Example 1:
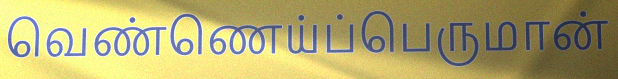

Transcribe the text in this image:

வெண்ணெய்ப்பெருமான்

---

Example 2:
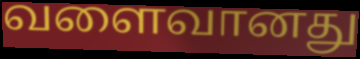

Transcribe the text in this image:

வளைவானது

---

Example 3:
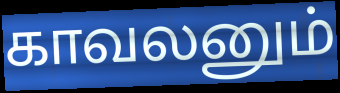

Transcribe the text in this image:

காவலனும்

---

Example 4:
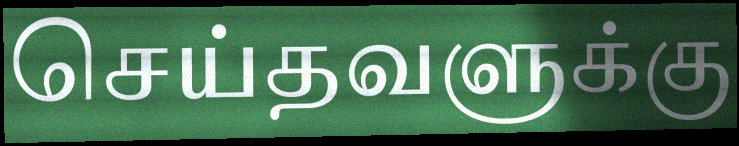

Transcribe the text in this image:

செய்தவளுக்கு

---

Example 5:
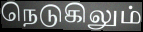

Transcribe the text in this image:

நெடுகிலும்